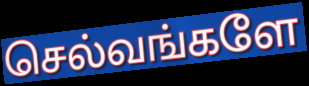
செல்வங்களே